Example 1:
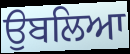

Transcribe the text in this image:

ਉਬਲਿਆ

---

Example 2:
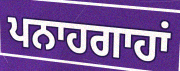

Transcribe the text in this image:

ਪਨਾਹਗਾਹਾਂ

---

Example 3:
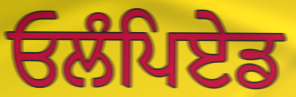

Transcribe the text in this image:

ਓਲੰਪਿਏਡ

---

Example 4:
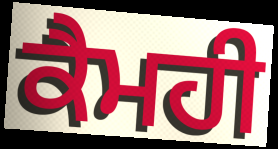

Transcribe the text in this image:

ਕੈਮਹੀ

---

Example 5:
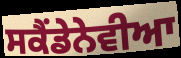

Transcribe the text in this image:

ਸਕੈਂਡੇਨੇਵੀਆ